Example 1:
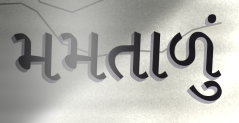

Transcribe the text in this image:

મમતાળું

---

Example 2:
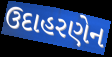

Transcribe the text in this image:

ઉદાહરણેન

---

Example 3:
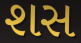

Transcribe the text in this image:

શસ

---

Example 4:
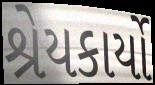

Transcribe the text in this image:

શ્રેયકાર્યો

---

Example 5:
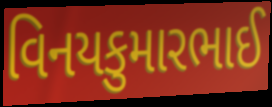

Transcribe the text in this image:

વિનયકુમારભાઈ